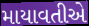
માયાવતીએ